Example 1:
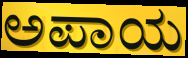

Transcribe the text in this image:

ಅಪಾಯ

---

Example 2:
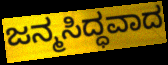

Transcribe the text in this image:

ಜನ್ಮಸಿದ್ಧವಾದ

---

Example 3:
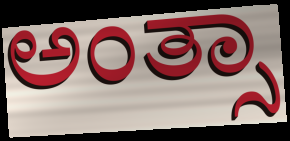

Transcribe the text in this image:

ಅಂತ್ಸಾ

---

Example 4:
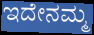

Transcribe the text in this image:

ಇದೇನಮ್ಮ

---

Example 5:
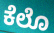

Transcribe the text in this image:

ಕೆಲೊ